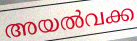
അയൽവക്ക